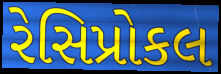
રેસિપ્રોકલ